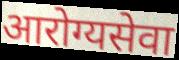
आरोग्यसेवा